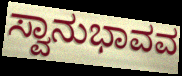
ಸ್ವಾನುಭಾವವ